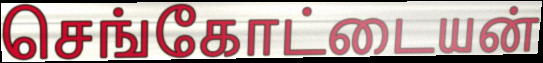
செங்கோட்டையன்